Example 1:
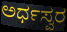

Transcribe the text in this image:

ಅರ್ಧಸ್ವರ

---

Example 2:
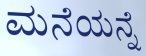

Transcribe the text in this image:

ಮನೆಯನ್ನೆ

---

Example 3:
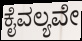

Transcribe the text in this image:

ಕೈವಲ್ಯವೇ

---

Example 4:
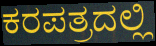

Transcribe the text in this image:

ಕರಪತ್ರದಲ್ಲಿ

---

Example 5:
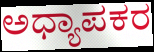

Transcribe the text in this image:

ಅಧ್ಯಾಪಕರ